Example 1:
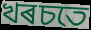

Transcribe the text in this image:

খৰচতে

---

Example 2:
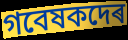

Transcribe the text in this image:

গবেষকদেৰ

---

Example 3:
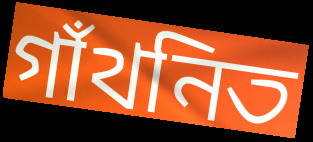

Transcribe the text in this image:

গাঁথনিত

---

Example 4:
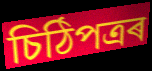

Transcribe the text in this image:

চিঠিপত্ৰৰ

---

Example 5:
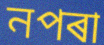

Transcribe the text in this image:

নপৰা